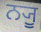
ਨ੍ਯੂ